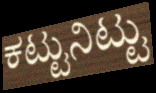
ಕಟ್ಟುನಿಟ್ಟು